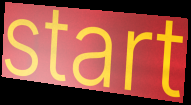
start